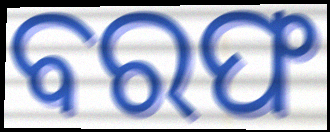
ବରଫ